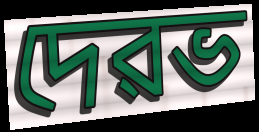
দেৱভ